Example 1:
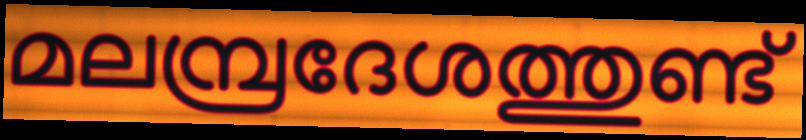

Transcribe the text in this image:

മലമ്പ്രദേശത്തുണ്ട്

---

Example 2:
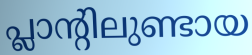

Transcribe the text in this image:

പ്ലാന്റിലുണ്ടായ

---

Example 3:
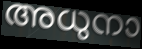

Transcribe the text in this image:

അധുനാ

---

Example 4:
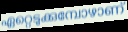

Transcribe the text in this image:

ഏറ്റെടുക്കുമ്പോഴാണ്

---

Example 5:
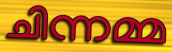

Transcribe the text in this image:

ചിന്നമ്മ